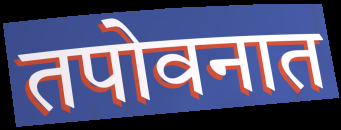
तपोवनात